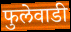
फुलेवाडी